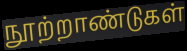
நூற்றாண்டுகள்